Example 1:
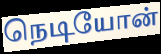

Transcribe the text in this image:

நெடியோன்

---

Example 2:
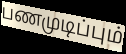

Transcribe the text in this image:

பணமுடிப்பும்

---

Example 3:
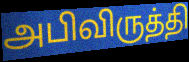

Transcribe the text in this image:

அபிவிருத்தி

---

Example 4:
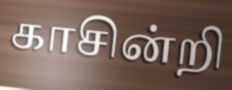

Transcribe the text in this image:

காசின்றி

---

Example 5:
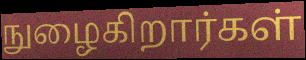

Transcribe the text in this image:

நுழைகிறார்கள்